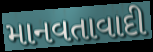
માનવતાવાદી